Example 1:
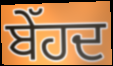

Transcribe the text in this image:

ਬੇੱਹਦ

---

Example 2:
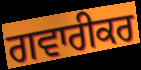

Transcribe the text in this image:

ਗਵਾਰੀਕਰ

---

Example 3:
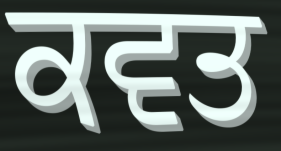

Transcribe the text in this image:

ਕਵਤ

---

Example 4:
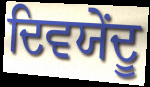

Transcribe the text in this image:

ਦਿਵਯੇਂਦੂ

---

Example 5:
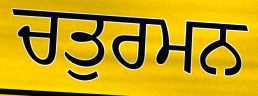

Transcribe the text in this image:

ਚਤੁਰਮਨ